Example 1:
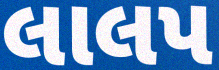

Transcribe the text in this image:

લાલપ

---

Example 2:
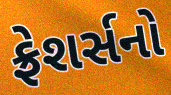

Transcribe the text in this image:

ફ્રેશર્સનો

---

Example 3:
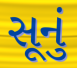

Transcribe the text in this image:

સૂનું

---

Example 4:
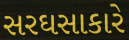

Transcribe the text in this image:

સરઘસાકારે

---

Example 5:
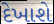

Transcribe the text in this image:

દેખાશે